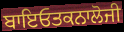
ਬਾਇਓਤਕਨਾਲੋਜੀ